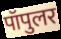
पॉपुलर